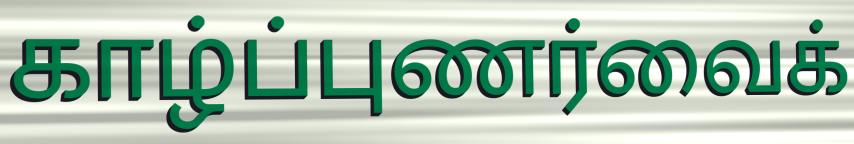
காழ்ப்புணர்வைக்